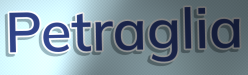
Petraglia